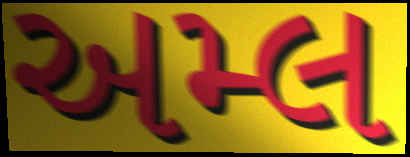
અમ્લ